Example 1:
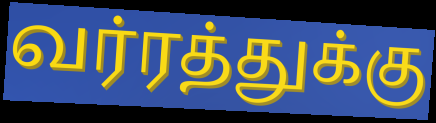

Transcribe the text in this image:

வர்ரத்துக்கு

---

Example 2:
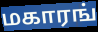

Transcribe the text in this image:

மகாரங்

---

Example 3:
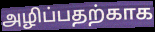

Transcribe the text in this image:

அழிப்பதற்காக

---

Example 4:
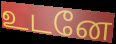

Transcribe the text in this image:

உடனே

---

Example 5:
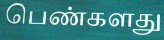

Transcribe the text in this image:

பெண்களது